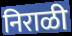
निराळी